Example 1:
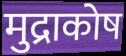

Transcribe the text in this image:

मुद्राकोष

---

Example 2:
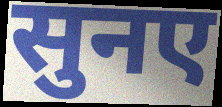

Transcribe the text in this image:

सुनए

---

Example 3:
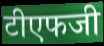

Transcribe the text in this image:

टीएफजी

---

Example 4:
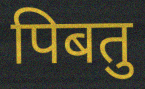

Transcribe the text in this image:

पिबतु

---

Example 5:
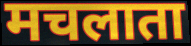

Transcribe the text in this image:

मचलाता